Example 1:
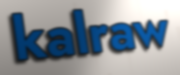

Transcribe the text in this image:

kalraw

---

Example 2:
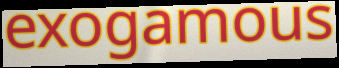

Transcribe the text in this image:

exogamous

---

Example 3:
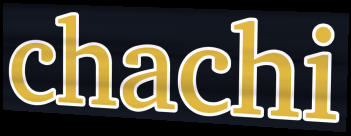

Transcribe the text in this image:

chachi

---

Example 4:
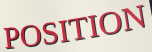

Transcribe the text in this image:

POSITION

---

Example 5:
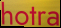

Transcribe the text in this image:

hotra